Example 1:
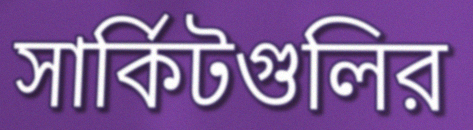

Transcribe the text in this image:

সার্কিটগুলির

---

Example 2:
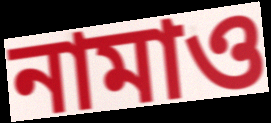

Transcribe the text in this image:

নামাও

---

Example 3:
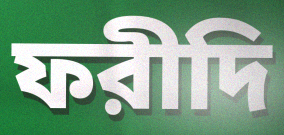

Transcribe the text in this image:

ফরীদি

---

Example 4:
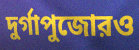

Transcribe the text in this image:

দুর্গাপুজোরও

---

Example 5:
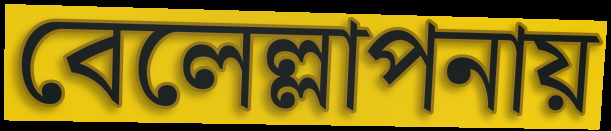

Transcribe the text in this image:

বেলেল্লাপনায়